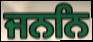
ਜਨਨਿ